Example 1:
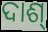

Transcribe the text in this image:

ଦାଶ୍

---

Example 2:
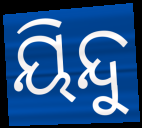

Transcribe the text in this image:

ୟିନ୍ଦୁ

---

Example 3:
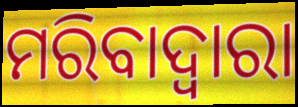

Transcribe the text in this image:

ମରିବାଦ୍ୱାରା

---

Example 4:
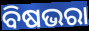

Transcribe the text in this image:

ବିଷଭରା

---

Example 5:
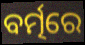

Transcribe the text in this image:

ବର୍ତ୍ମରେ